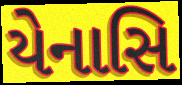
યેનાસિ